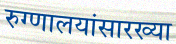
रुग्णालयांसारख्या